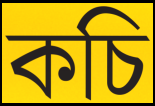
কচি